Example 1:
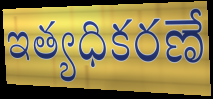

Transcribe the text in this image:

ఇత్యధికరణే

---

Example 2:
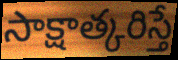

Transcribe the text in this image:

సాక్షాత్కరిస్తే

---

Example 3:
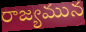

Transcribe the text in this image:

రాజ్యమున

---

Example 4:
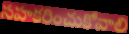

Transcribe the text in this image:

సహకరించుకోవాలి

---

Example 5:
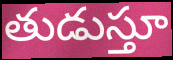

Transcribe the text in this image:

తుడుస్తూ